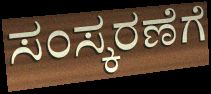
ಸಂಸ್ಕರಣೆಗೆ